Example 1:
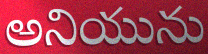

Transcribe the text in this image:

అనియును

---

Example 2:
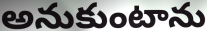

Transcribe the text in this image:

అనుకుంటాను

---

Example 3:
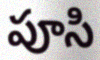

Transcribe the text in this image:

పూసి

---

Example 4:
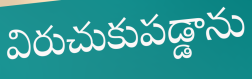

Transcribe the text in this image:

విరుచుకుపడ్డాను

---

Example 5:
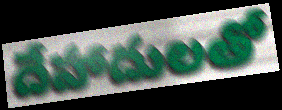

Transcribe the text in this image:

దేహాదులతో